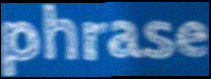
phrase